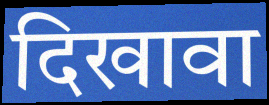
दिखावा